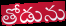
తోడును